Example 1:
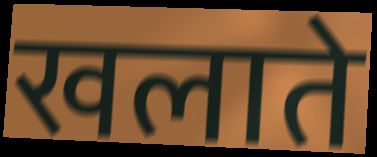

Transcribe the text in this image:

खलाते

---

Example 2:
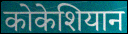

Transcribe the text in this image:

कोकेशियान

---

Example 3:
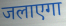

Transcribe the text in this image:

जलाएगा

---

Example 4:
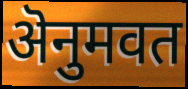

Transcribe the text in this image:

ऄनुमवत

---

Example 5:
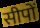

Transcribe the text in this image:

सीपों